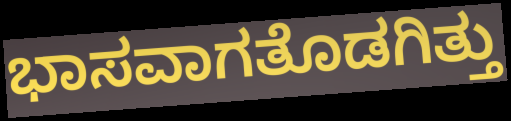
ಭಾಸವಾಗತೊಡಗಿತ್ತು